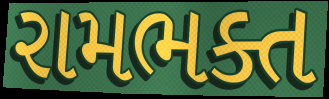
રામભક્ત